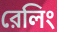
রেলিং